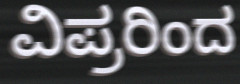
ವಿಪ್ರರಿಂದ